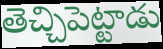
తెచ్చిపెట్టాడు